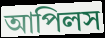
আপিলস